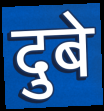
दुबे